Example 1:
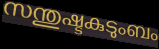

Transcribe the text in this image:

സന്തുഷ്ടകുടുംബം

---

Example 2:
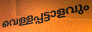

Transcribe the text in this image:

വെള്ളപ്പട്ടാളവും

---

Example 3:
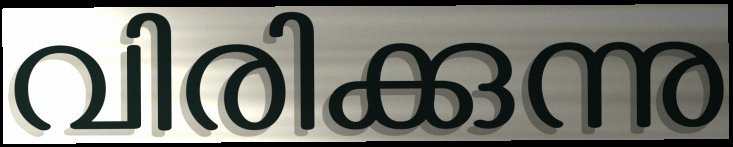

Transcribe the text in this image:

വിരിക്കുന്നു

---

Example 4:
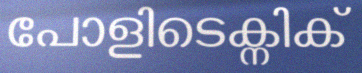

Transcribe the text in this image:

പോളിടെക്നിക്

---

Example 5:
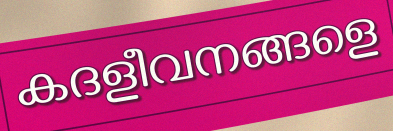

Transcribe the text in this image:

കദളീവനങ്ങളെ